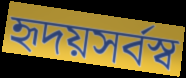
হৃদয়সর্বস্ব